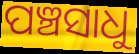
ପଞ୍ଚସାଧୁ